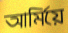
আৰ্মিয়ে